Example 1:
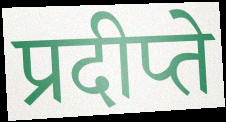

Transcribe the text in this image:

प्रदीप्ते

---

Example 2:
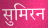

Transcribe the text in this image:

सुमिरन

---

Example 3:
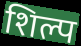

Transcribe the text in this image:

शिल्‍प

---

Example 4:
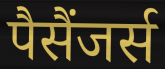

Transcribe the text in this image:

पैसैंजर्स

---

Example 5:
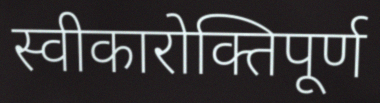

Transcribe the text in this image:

स्वीकारोक्तिपूर्ण